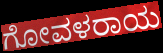
ಗೋವಳರಾಯ